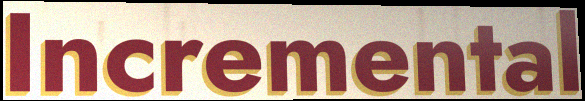
Incremental